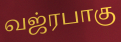
வஜ்ரபாகு